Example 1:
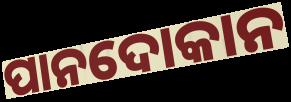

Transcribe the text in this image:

ପାନଦୋକାନ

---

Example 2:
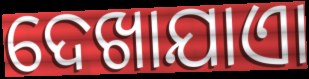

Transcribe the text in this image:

ଦେଖାଯାଏା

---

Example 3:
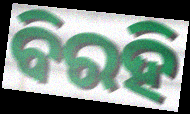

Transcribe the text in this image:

ବିରହି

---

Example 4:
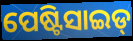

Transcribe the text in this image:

ପେଷ୍ଟିସାଇଡ୍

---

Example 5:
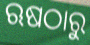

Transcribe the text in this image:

ଋଷଠାରୁ